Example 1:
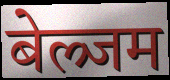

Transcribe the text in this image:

बेल्जम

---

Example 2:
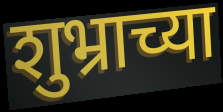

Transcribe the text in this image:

शुभ्राच्या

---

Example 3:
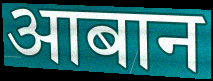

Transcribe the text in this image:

आबान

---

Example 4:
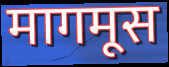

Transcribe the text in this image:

मागमूस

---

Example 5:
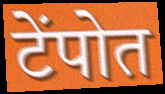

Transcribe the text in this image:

टेंपोत